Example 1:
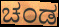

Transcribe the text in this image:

ಚಂಡ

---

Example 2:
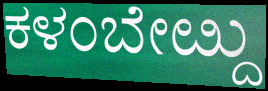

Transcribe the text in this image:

ಕಳಂಬೇೞ್ದು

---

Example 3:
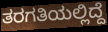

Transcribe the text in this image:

ತರಗತಿಯಲ್ಲಿದ್ದೆ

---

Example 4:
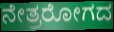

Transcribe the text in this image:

ನೇತ್ರರೋಗದ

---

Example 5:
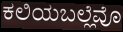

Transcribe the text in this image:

ಕಲಿಯಬಲ್ಲೆವೊ